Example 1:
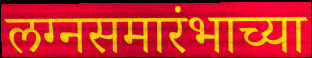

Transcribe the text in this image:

लग्नसमारंभाच्या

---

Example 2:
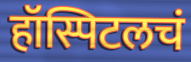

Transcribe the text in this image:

हॉस्पिटलचं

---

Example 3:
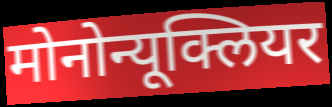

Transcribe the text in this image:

मोनोन्यूक्लियर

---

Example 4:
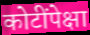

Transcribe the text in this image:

कोटींपेक्षा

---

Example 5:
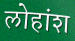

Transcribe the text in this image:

लोहांश